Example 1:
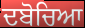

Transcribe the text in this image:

ਦਬੋਚਿਆ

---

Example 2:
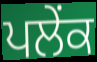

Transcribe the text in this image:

ਪਲੇਂਕ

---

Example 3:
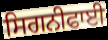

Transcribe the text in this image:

ਸਿਗਨੀਫਾਈ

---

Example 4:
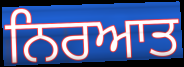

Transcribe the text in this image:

ਨਿਰਆਤ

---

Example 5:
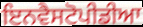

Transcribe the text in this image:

ਇਨਵੈਸਟੋਪੀਡੀਆ